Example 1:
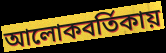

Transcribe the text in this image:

আলোকবর্তিকায়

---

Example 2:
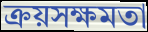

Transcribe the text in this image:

ক্রয়সক্ষমতা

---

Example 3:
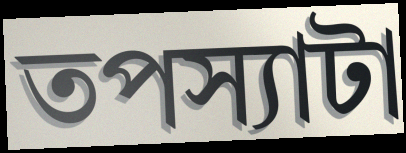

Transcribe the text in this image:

তপস্যাটা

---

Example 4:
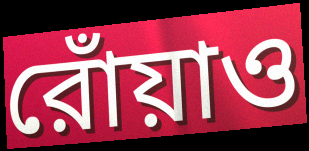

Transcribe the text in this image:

রোঁয়াও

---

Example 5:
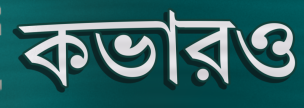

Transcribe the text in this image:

কভারও